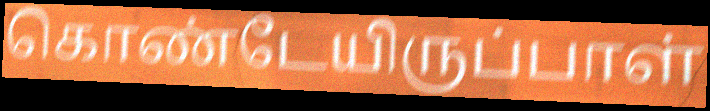
கொண்டேயிருப்பாள்